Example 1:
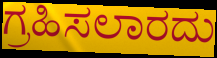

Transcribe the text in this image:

ಗ್ರಹಿಸಲಾರದು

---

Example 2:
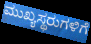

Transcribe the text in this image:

ಮುಖ್ಯಸ್ಥರುಗಳಿಗೆ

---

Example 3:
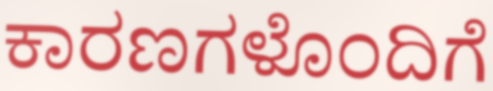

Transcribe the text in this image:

ಕಾರಣಗಳೊಂದಿಗೆ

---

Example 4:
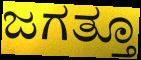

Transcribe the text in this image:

ಜಗತ್ತೂ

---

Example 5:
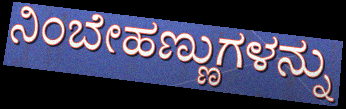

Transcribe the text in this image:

ನಿಂಬೇಹಣ್ಣುಗಳನ್ನು